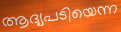
ആദ്യപടിയെന്ന